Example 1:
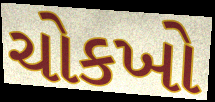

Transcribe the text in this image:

ચોકખો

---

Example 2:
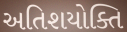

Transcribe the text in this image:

અતિશયોક્તિ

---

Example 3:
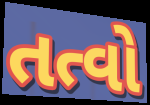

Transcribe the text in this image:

તત્વો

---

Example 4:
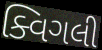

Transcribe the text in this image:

ક્વિગલી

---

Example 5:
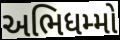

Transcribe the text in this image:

અભિધમ્મો